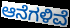
ಆನೆಗಳಿವೆ